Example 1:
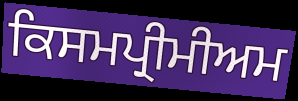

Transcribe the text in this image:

ਕਿਸਮਪ੍ਰੀਮੀਅਮ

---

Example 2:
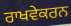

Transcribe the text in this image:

ਰਾਖਵੇਕਰਨ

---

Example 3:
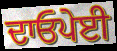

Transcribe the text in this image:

ਦਾਓਪੇਈ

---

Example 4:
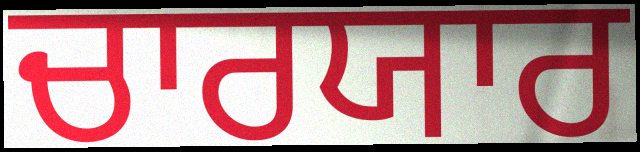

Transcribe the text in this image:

ਚਾਰਯਾਰ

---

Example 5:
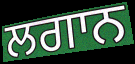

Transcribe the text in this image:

ਲਗਾਨ